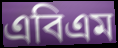
এবিএম